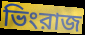
ভিংরাজ